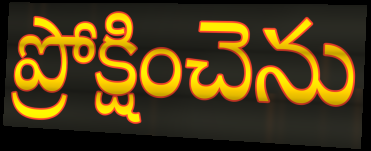
ప్రోక్షించెను